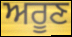
ਅਰੂਣ